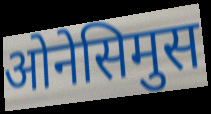
ओनेसिमुस